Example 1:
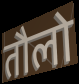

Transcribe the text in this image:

तौलो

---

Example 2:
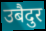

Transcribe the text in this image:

उबैदुर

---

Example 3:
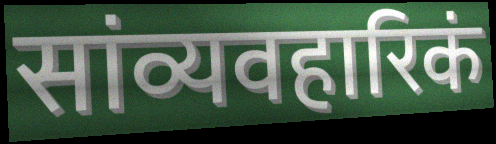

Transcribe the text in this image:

सांव्यवहारिकं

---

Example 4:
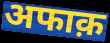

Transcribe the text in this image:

अफाक़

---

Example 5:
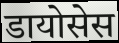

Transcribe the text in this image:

डायोसेस